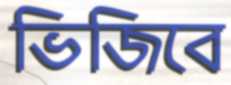
ভিজিবে